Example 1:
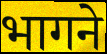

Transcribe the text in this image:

भागने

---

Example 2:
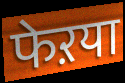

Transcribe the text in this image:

फेऱया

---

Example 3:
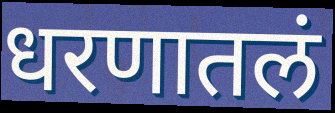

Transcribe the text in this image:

धरणातलं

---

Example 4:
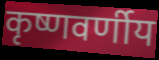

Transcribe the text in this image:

कृष्णवर्णीय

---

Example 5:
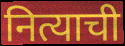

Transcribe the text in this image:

नित्याची